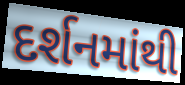
દર્શનમાંથી